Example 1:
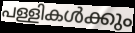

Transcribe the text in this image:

പള്ളികൾക്കും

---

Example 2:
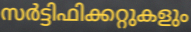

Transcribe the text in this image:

സർട്ടിഫിക്കറ്റുകളും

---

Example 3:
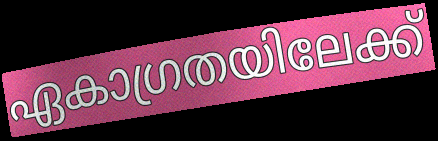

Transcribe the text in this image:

ഏകാഗ്രതയിലേക്ക്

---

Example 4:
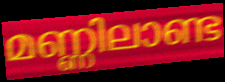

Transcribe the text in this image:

മണ്ണിലാണ്ട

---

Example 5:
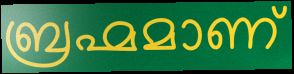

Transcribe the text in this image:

ബ്രഹ്മമാണ്